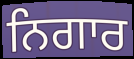
ਨਿਗਾਰ